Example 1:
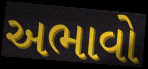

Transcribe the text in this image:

અભાવો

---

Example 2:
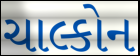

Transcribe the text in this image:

ચાલ્કોન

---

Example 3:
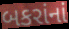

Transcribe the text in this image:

બકરાંનાં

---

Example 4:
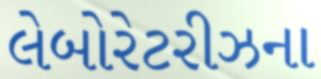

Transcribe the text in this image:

લેબોરેટરીઝના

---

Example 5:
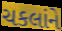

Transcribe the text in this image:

ચકલાંને